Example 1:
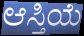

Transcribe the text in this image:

ಆಸ್ತಿಯೆ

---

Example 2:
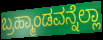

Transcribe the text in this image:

ಬ್ರಹ್ಮಾಂಡವನ್ನೆಲ್ಲಾ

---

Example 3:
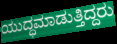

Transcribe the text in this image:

ಯುದ್ಧಮಾಡುತ್ತಿದ್ದರು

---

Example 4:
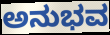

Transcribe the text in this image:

ಅನುಭವ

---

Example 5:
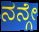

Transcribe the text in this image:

ನನ್ಗೇ